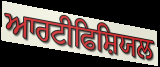
ਆਰਟੀਫਿਸ਼ਿਯਲ